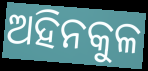
ଅହିନକୁଳ